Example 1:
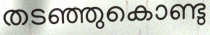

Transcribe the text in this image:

തടഞ്ഞുകൊണ്ടു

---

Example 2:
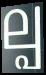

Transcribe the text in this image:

ല്പ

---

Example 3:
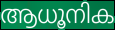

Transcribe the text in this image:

ആധൂനിക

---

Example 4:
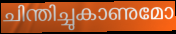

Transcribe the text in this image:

ചിന്തിച്ചുകാണുമോ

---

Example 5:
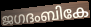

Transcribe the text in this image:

ജഗദംബികേ